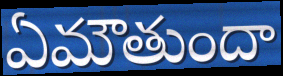
ఏమౌతుందా